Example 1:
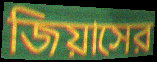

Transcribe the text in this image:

জিয়াসের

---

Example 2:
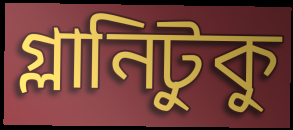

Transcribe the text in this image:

গ্লানিটুকু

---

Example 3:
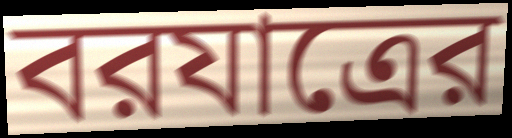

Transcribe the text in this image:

বরযাত্রের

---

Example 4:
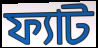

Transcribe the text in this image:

ফ্যাট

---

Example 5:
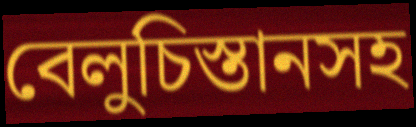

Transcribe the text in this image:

বেলুচিস্তানসহ